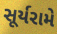
સૂર્યરામે